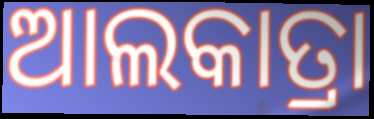
ଆଲକାତ୍ରା